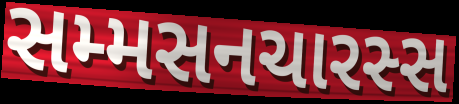
સમ્મસનચારસ્સ